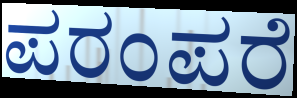
ಪರಂಪರೆ